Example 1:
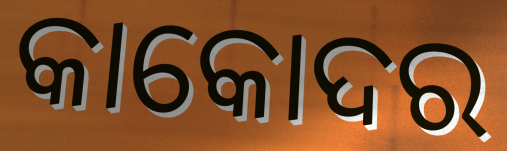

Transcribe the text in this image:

କାକୋଦର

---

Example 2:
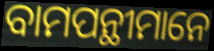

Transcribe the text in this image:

ବାମପନ୍ଥୀମାନେ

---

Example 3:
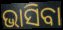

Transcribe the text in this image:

ଭାସିବା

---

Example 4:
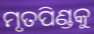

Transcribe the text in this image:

ମୃତପିଣ୍ଡକୁ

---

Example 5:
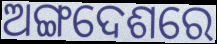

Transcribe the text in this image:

ଅଙ୍ଗଦେଶରେ